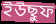
ইউছুফ